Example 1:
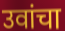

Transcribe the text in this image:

उवांचा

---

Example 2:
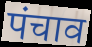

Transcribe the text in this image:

पंचाव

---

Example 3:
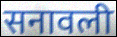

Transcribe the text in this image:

सनावली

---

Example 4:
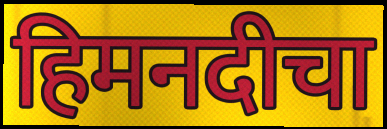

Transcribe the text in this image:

हिमनदीचा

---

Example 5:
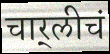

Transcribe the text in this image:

चार्लीचं